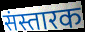
संस्तारक